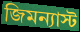
জিমন্যাস্ট